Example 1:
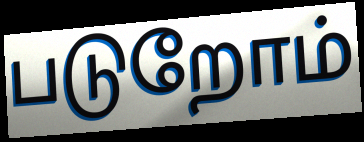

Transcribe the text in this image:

படுறோம்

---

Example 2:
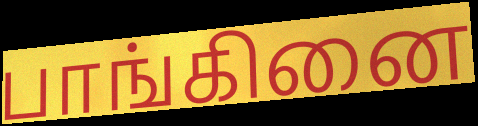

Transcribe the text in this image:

பாங்கினை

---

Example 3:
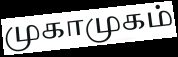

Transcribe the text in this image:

முகாமுகம்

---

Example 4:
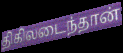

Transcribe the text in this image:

திகிலடைந்தான்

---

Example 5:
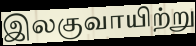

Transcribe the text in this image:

இலகுவாயிற்று